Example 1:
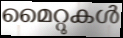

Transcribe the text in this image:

മൈറ്റുകൾ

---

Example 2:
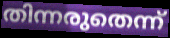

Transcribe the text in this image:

തിന്നരുതെന്ന്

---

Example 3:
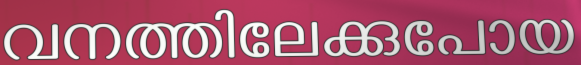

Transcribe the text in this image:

വനത്തിലേക്കുപോയ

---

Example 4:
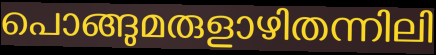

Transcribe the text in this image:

പൊങ്ങുമരുളാഴിതന്നിലി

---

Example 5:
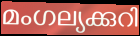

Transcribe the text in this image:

മംഗല്യക്കുറി